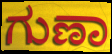
ಗುಣಾ